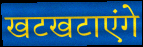
खटखटाएंगे